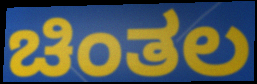
ಚಿಂತಲ